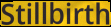
Stillbirth